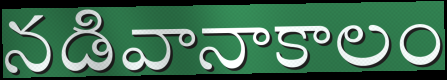
నడివానాకాలం